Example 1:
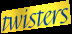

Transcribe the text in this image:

twisters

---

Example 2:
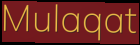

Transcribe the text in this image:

Mulaqat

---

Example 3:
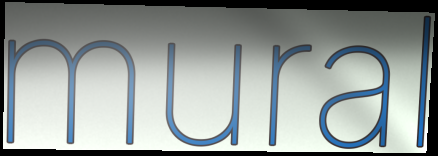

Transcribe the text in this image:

mural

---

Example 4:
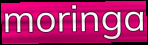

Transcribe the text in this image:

moringa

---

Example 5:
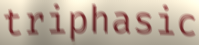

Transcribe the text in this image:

triphasic